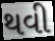
થવી